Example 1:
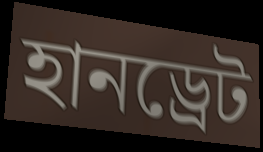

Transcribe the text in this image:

হানড্রেট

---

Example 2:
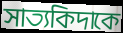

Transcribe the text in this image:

সাত্যকিদাকে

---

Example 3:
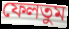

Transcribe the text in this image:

ফেলতুম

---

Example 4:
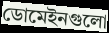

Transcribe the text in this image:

ডোমেইনগুলো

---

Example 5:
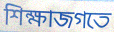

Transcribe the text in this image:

শিক্ষাজগতে